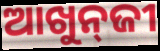
ଆଖୁନ୍‍ଜୀ